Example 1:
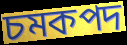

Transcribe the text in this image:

চমকপদ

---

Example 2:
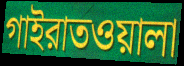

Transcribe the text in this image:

গাইরাতওয়ালা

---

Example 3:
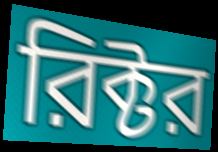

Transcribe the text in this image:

রিক্টর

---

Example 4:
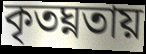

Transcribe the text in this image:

কৃতঘ্নতায়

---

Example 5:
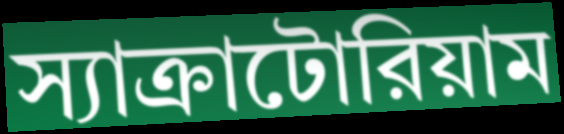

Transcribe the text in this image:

স্যাক্রাটোরিয়াম